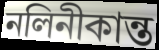
নলিনীকান্ত